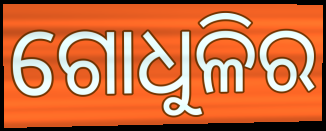
ଗୋଧୁଳିର